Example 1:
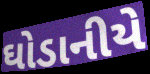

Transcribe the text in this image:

ઘોડાનીયે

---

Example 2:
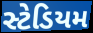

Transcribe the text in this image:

સ્ટેડિયમ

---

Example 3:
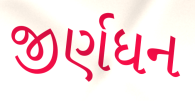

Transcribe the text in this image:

જીર્ણધન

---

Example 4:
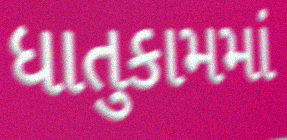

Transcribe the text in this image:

ધાતુકામમાં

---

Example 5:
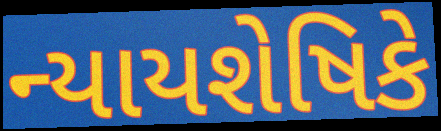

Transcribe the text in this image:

ન્યાયશેષિકે